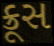
ક્રૂસ